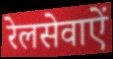
रेलसेवाऐं